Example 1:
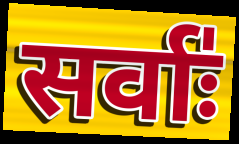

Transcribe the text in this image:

सर्वाः॑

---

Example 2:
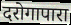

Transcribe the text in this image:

दरोगापारा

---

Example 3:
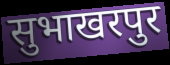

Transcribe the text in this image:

सुभाखरपुर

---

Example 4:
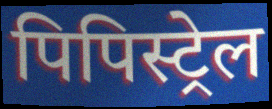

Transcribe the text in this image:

पिपिस्ट्रेल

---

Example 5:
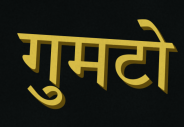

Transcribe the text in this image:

गुमटो